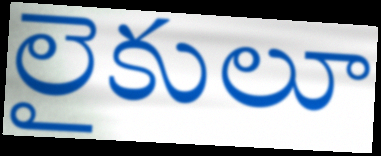
లైకులూ